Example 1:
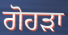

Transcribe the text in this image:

ਗੋਹੜਾ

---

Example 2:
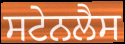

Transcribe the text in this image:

ਸਟੇਨਲੈਸ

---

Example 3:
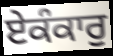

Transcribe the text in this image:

ਏਕੰਕਾਰੁ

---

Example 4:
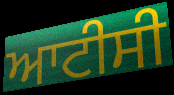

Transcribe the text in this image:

ਆਟੀਸੀ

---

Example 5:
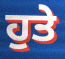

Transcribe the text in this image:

ਹੁਤੇ